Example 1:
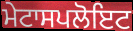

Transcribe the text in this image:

ਮੇਟਾਸਪਲੋਇਟ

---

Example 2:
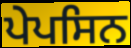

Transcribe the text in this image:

ਪੇਪਸਿਨ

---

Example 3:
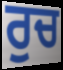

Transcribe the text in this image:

ਰੁਚ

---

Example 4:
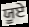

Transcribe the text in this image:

ਯੂਏ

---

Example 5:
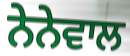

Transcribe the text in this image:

ਨੇਨੇਵਾਲ